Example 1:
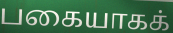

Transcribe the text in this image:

பகையாகக்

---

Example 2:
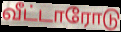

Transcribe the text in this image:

வீட்டாரோடு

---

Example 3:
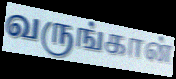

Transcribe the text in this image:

வருங்கான்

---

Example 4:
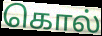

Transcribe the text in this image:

கொல்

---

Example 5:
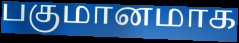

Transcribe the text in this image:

பகுமானமாக